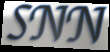
SNN